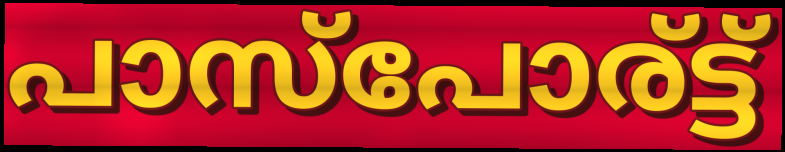
പാസ്പോര്ട്ട്